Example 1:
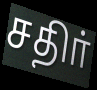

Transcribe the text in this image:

சதிர்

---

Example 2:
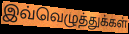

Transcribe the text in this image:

இவ்வெழுத்துக்கள்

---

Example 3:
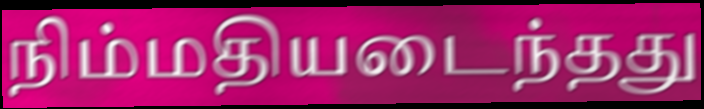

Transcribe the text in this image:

நிம்மதியடைந்தது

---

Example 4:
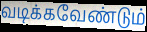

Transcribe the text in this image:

வடிக்கவேண்டும்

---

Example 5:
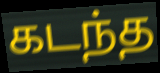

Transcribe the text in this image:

கடந்த